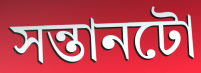
সন্তানটো